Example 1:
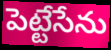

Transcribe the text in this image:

పెట్టేసేను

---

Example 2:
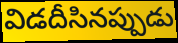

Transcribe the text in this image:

విడదీసినప్పుడు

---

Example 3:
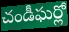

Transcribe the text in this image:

చండీఘర్లో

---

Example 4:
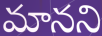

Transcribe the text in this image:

మానని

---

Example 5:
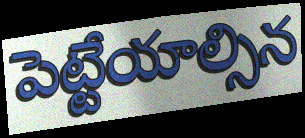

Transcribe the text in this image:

పెట్టేయాల్సిన